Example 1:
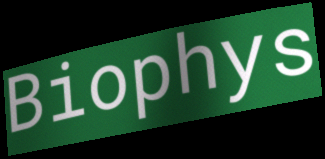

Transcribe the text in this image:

Biophys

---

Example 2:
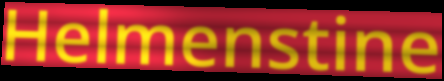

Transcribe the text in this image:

Helmenstine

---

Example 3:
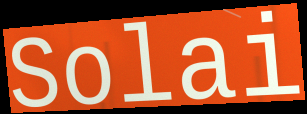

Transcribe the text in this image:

Solai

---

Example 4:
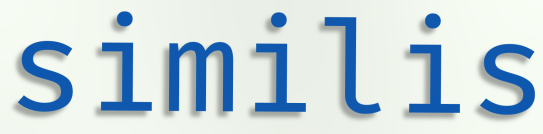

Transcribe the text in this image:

similis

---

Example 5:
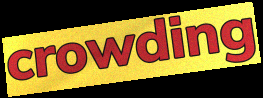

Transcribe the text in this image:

crowding